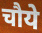
चौये